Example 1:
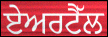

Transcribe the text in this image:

ਏਅਰਟੈੱਲ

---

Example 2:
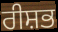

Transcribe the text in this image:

ਰੀਸ਼ਭ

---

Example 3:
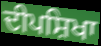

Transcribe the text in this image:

ਦੀਪਸ਼ਿਖਾ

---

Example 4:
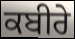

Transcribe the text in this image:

ਕਬੀਰੇ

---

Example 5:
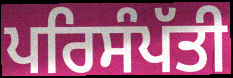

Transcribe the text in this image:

ਪਰਿਸੰਪੱਤੀ